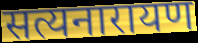
सत्यनारायण